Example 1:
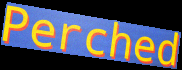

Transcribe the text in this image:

Perched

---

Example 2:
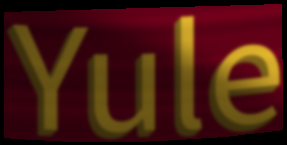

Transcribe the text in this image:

Yule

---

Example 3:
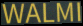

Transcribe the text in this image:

WALMI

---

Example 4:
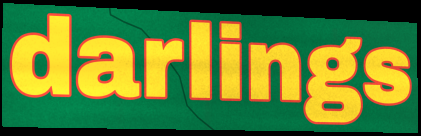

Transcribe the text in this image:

darlings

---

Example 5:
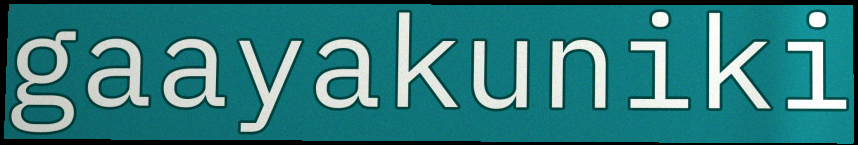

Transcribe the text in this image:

gaayakuniki